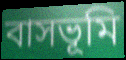
বাসভূমি